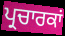
ਪ੍ਰਚਾਰਕਾਂ